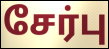
சேர்பு